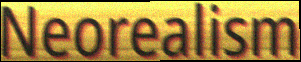
Neorealism